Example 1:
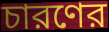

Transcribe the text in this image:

চারণের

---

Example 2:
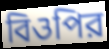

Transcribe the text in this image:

বিওপির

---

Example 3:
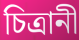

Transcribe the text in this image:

চিত্রানী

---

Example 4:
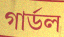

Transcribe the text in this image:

গার্ডল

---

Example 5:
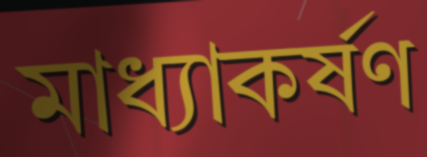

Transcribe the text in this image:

মাধ্যাকর্ষণ